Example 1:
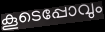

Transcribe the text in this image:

കൂടെപ്പോവും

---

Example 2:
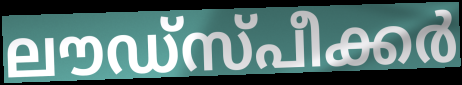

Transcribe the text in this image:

ലൗഡ്സ്പീക്കർ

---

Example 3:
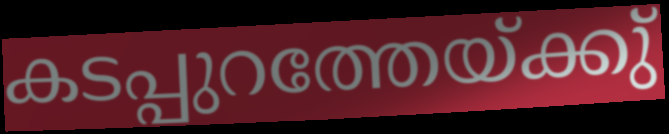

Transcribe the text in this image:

കടപ്പുറത്തേയ്ക്കു്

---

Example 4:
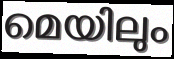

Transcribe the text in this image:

മെയിലും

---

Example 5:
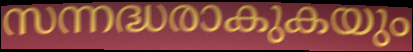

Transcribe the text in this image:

സന്നദ്ധരാകുകയും